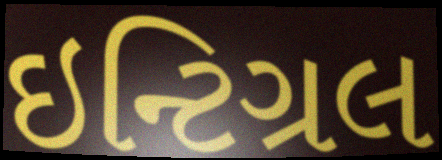
ઇન્ટિગ્રલ